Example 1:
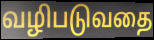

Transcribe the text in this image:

வழிபடுவதை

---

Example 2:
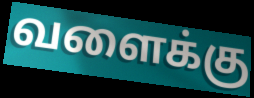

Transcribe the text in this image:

வளைக்கு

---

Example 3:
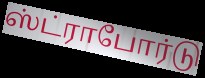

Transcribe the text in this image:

ஸ்ட்ராபோர்டு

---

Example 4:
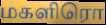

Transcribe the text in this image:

மகளிரொ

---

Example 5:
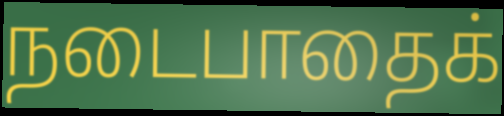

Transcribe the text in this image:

நடைபாதைக்